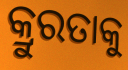
କ୍ରୁରତାକୁ